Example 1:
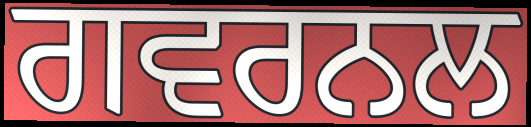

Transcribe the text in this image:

ਗਵਰਨਲ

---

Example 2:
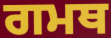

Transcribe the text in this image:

ਗਮਥ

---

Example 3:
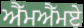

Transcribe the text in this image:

ਐੱਮਐੱਮਏ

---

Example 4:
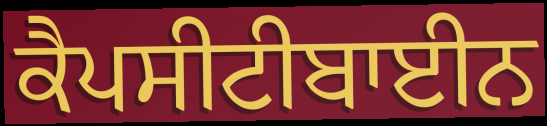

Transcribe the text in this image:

ਕੈਪਸੀਟੀਬਾਈਨ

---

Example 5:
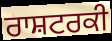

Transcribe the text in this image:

ਰਾਸ਼ਟਰਕੀ